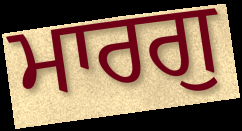
ਮਾਰਗੁ